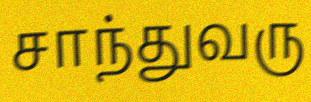
சாந்துவரு